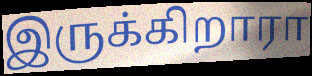
இருக்கிறாரா